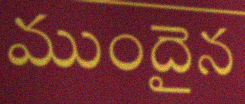
ముందైన